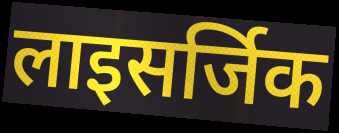
लाइसर्जिक